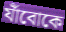
র্যাঁবোকে